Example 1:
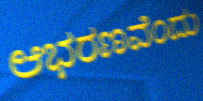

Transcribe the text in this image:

ಆಭರಣವೆಂದು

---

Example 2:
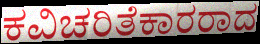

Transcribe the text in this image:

ಕವಿಚರಿತೆಕಾರರಾದ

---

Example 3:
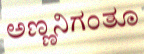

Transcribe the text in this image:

ಅಣ್ಣನಿಗಂತೂ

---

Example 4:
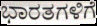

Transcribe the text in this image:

ಭಾರತಗಳಿಗೆ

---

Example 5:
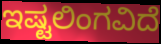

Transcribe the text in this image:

ಇಷ್ಟಲಿಂಗವಿದೆ